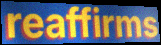
reaffirms